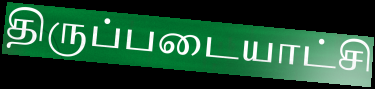
திருப்படையாட்சி